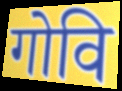
गोवि